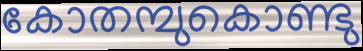
കോതമ്പുകൊണ്ടു